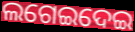
ଲଗେଇଦେଇ